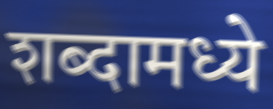
शब्दामध्ये